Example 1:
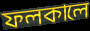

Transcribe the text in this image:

ফলকালে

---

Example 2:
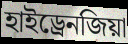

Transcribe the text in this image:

হাইড্রেনজিয়া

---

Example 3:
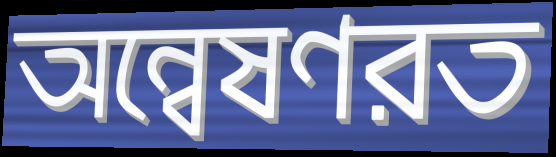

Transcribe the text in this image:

অন্বেষণরত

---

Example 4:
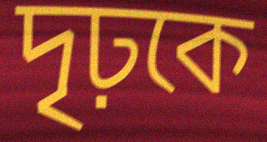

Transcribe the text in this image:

দৃঢ়কে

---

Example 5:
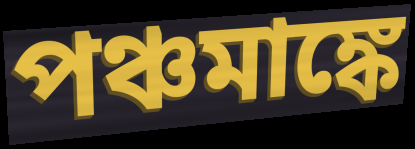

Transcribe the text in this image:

পঞ্চমাঙ্কে